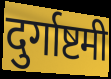
दुर्गाष्टमी